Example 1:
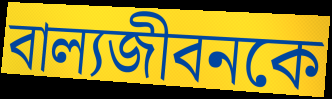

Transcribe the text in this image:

বাল্যজীবনকে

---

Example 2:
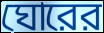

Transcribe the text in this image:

ঘোরের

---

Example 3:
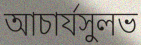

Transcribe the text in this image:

আচার্যসুলভ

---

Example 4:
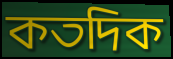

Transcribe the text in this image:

কতদিক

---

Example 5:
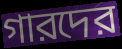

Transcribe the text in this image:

গারদের